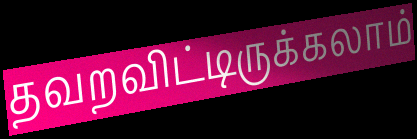
தவறவிட்டிருக்கலாம்